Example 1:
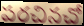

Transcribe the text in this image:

పరచినచో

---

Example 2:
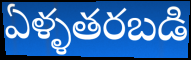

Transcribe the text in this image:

ఏళ్ళతరబడి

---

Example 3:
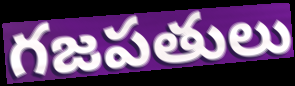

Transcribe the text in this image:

గజపతులు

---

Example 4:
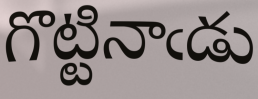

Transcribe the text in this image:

గొట్టినాఁడు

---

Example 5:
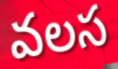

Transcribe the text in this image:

వలస